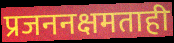
प्रजननक्षमताही